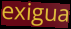
exigua